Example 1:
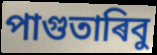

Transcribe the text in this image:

পাগুতাৰিবু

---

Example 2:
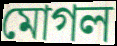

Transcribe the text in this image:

মোগল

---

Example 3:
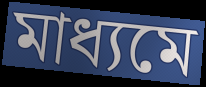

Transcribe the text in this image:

মাধ্যমে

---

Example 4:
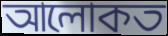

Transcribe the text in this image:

আলোকত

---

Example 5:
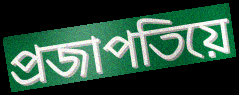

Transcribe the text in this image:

প্ৰজাপতিয়ে